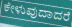
ಕೇಳುವುದಾದರೆ